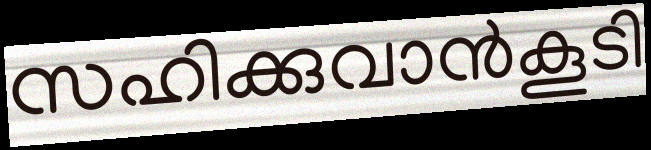
സഹിക്കുവാൻകൂടി